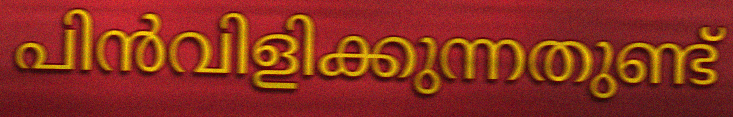
പിൻവിളിക്കുന്നതുണ്ട്